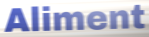
Aliment